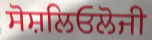
ਸੋਸ਼ਲਿਓਲੋਜੀ